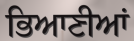
ਭਿਆਣੀਆਂ